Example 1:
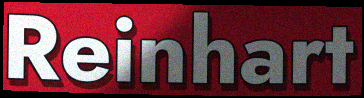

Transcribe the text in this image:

Reinhart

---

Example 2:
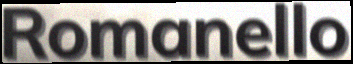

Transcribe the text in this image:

Romanello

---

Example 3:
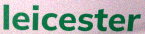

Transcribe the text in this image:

leicester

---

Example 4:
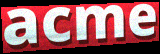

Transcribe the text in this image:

acme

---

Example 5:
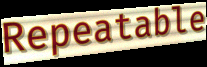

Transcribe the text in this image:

Repeatable